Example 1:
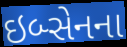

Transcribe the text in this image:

ઇબ્સેનના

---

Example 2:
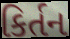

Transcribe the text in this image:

કિર્તન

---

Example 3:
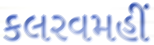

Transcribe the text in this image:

કલરવમહીં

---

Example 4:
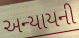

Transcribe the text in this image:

અન્યાયની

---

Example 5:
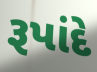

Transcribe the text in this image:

રૂપાંદે